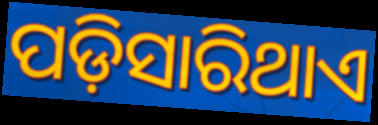
ପଡ଼ିସାରିଥାଏ